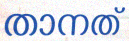
താനത്